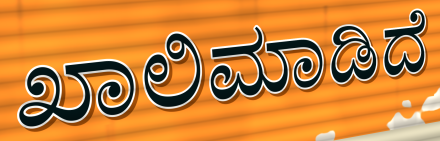
ಖಾಲಿಮಾಡಿದೆ